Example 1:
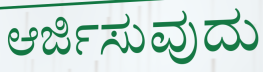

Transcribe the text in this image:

ಆರ್ಜಿಸುವುದು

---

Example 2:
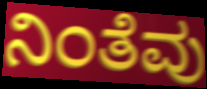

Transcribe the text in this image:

ನಿಂತೆವು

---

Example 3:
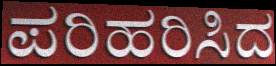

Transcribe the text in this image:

ಪರಿಹರಿಸಿದ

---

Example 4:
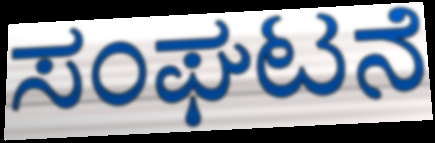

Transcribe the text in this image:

ಸಂಘಟನೆ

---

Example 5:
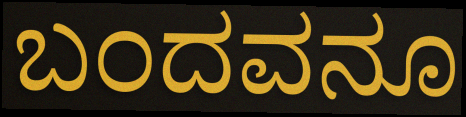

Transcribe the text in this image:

ಬಂದವನೂ